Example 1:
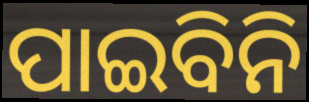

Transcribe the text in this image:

ପାଇବିନି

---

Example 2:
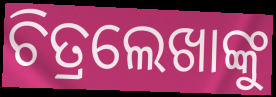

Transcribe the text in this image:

ଚିତ୍ରଲେଖାଙ୍କୁ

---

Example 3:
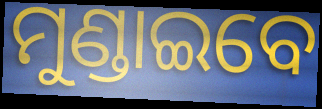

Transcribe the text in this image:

ମୁଣ୍ଡାଇବେ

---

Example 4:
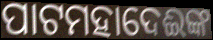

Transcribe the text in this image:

ପାଟମହାଦେଈଙ୍କ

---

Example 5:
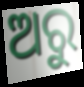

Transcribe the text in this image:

ଅରୁ